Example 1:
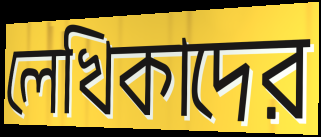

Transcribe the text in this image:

লেখিকাদের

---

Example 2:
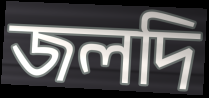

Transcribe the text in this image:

জলদি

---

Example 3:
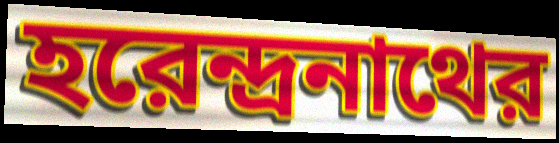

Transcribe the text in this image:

হরেন্দ্রনাথের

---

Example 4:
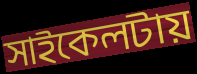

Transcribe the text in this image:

সাইকেলটায়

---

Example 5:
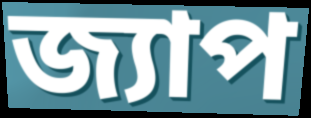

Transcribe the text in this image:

জ্যাপ